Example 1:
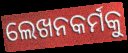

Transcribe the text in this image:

ଲେଖନକର୍ମକୁ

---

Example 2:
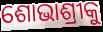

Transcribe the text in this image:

ଶୋଭାଶ୍ରୀକୁ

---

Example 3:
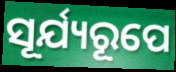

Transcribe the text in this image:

ସୂର୍ଯ୍ୟରୂପେ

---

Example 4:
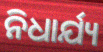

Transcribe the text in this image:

ନିଧାର୍ଯ୍ୟ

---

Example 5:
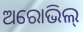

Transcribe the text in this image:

ଅରୋଭିଲ୍